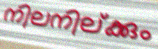
നിലനില്ക്കും